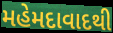
મહેમદાવાદથી